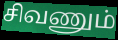
சிவணும்